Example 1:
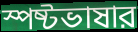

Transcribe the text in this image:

স্পষ্টভাষার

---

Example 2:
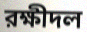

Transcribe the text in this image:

রক্ষীদল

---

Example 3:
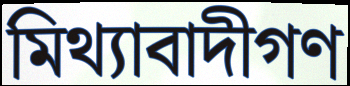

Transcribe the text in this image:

মিথ্যাবাদীগণ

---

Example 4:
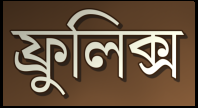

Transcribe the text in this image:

ফ্রুলিক্স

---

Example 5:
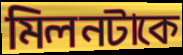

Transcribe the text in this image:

মিলনটাকে